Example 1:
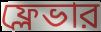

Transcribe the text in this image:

ফ্লেভার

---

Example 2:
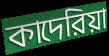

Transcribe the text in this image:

কাদেরিয়া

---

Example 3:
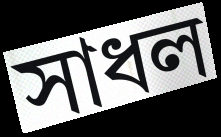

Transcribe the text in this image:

সাধল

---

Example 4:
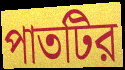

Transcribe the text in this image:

পাতটির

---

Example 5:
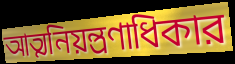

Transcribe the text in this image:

আত্মনিয়ন্ত্রণাধিকার